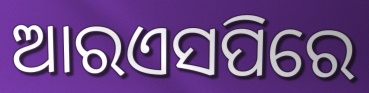
ଆରଏସପିରେ